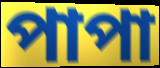
পাপা